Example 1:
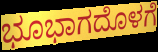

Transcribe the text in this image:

ಭೂಭಾಗದೊಳಗೆ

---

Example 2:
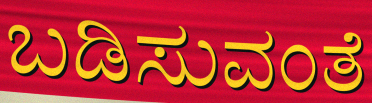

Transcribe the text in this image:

ಬಡಿಸುವಂತೆ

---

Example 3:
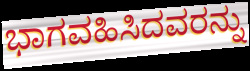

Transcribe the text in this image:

ಭಾಗವಹಿಸಿದವರನ್ನು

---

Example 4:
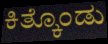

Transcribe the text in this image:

ಕಿತ್ಕೊಂಡು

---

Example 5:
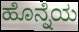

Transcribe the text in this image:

ಹೊನ್ನೆಯ